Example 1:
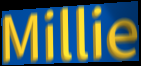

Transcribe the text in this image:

Millie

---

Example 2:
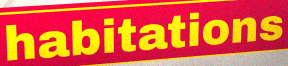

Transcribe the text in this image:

habitations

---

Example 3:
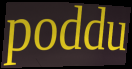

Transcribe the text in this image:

poddu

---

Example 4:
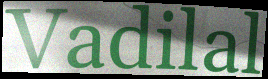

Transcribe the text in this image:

Vadilal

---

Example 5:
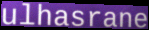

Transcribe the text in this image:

ulhasrane